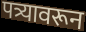
पत्र्यावरून